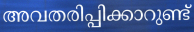
അവതരിപ്പിക്കാറുണ്ട്